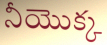
నీయొక్క